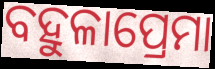
ବହୁଳାପ୍ରେମା